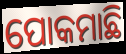
ପୋକମାଛି